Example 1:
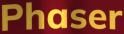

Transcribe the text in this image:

Phaser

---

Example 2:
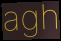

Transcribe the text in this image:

agh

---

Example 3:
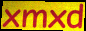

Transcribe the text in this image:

xmxd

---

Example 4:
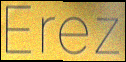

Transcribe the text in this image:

Erez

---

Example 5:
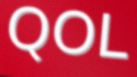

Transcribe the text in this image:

QOL